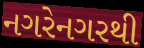
નગરેનગરથી